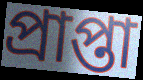
প্রাপ্তা